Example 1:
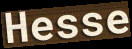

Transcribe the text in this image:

Hesse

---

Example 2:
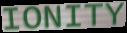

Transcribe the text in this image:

IONITY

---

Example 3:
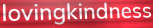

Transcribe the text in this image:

lovingkindness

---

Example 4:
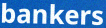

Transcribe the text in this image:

bankers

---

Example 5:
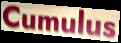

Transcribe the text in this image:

Cumulus